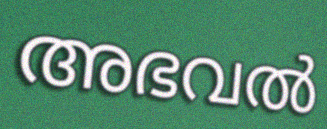
അഭവൽ